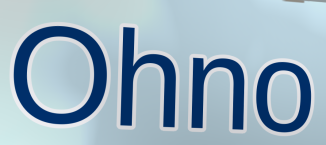
Ohno